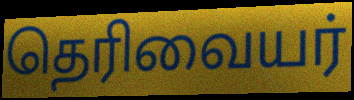
தெரிவையர்